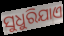
ସୁଧୁରିଯାଏ